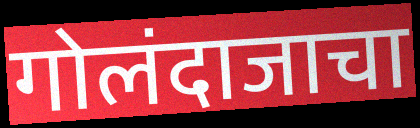
गोलंदाजाचा